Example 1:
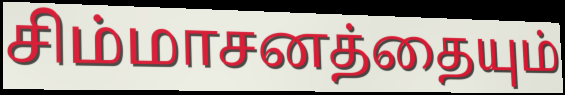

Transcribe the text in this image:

சிம்மாசனத்தையும்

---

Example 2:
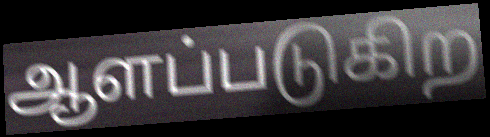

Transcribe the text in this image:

ஆளப்படுகிற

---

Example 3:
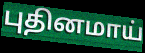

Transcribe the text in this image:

புதினமாய்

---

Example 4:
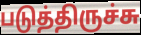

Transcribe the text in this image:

படுத்திருச்சு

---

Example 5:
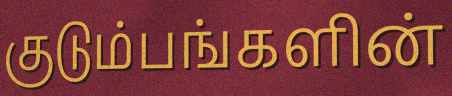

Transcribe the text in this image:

குடும்பங்களின்